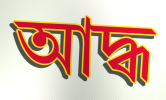
আদ্ধ